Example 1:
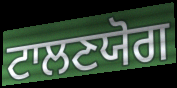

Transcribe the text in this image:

ਟਾਲਣਯੋਗ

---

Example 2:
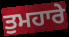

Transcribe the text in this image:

ਤੁਮਹਾਰੇ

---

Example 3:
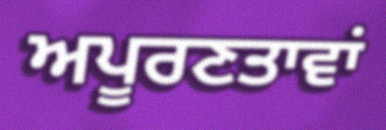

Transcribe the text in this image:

ਅਪੂਰਣਤਾਵਾਂ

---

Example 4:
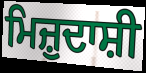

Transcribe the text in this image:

ਮਿਜ਼ੁਦਾਸ਼ੀ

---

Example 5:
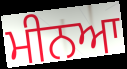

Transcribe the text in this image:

ਮੀਨਆ